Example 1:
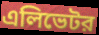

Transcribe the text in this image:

এলিভেটর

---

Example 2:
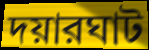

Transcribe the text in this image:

দয়ারঘাট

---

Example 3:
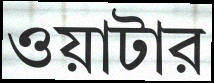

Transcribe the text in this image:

ওয়াটার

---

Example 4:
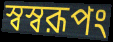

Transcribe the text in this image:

স্বস্বরূপং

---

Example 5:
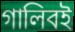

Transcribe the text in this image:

গালিবই